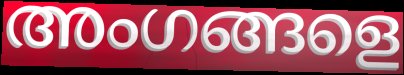
അംഗങ്ങളെ